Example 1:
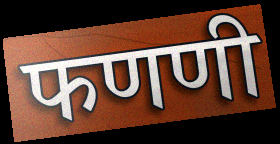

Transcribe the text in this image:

फणणी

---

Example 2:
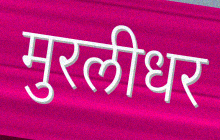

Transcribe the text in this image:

मुरलीधर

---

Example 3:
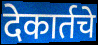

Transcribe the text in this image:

देकार्तचे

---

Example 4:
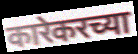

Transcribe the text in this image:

कारेकरच्या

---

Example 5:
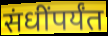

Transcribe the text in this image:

संधींपर्यंत